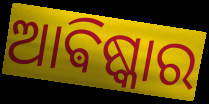
ଆଵିଷ୍କାର